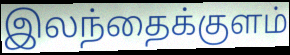
இலந்தைக்குளம்